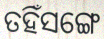
ତହିଁସଙ୍ଗେ